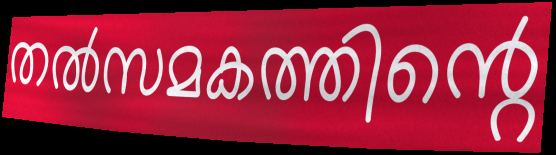
തൽസമകത്തിന്റെ